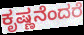
ಕೃಷ್ಣನೆಂದರೆ